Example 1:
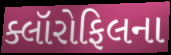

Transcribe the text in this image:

ક્લૉરોફિલના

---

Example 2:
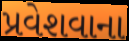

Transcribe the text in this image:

પ્રવેશવાના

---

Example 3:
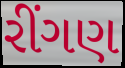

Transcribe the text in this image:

રીંગણ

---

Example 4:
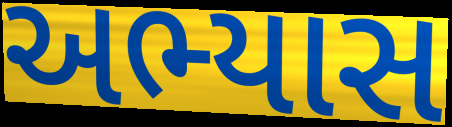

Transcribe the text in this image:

અભ્યાસ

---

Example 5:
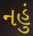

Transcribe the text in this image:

નહું